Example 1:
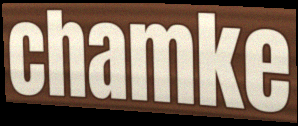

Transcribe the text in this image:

chamke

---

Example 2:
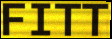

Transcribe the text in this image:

FITT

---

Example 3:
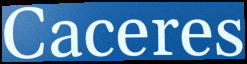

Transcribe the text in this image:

Caceres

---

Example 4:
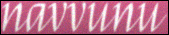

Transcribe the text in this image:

navvunu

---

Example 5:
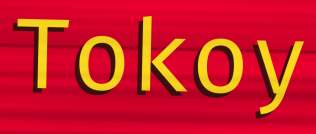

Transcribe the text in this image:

Tokoy